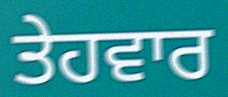
ਤੇਹਵਾਰ